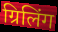
ग्रिलिंग